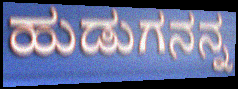
ಹುಡುಗನನ್ನ